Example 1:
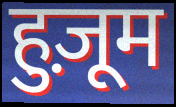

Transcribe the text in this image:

हुज़ूम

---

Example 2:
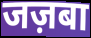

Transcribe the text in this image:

जज़बा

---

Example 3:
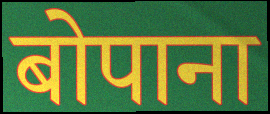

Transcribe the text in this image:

बोपाना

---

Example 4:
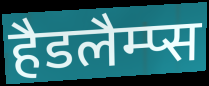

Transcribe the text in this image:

हैडलैम्प्स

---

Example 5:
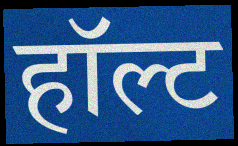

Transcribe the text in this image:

हॉल्‍ट